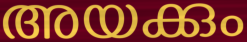
അയക്കും